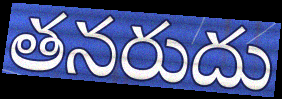
తనరుదు